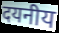
दयनीय